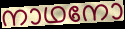
നാഥനോ